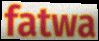
fatwa